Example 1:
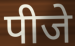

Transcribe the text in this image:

पीजे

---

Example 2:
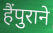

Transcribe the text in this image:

हैंपुराने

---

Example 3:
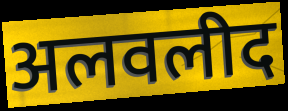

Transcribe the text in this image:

अलवलीद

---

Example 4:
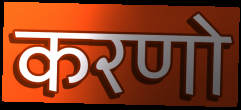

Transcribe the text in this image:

करणो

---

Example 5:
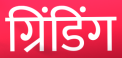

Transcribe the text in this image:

ग्रिंडिंग